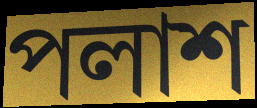
পলাশ